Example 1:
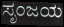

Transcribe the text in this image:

ಸೃಂಜಯ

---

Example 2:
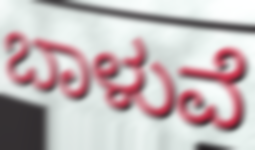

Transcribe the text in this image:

ಬಾಳುವೆ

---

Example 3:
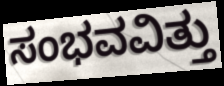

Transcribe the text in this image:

ಸಂಭವವಿತ್ತು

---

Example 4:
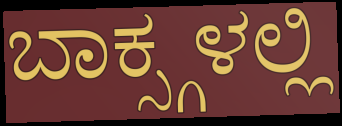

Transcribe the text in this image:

ಬಾಕ್ಸ್ಗಳಲ್ಲಿ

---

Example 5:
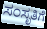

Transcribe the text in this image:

ಸಂಸೃತಿಗೆ